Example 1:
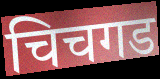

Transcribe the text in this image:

चिचगड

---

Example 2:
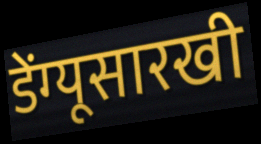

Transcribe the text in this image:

डेंग्यूसारखी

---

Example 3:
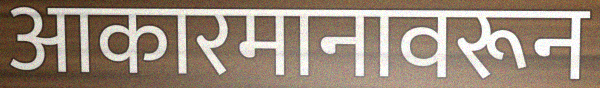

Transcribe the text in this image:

आकारमानावरून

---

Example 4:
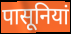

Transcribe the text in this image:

पासूनियां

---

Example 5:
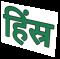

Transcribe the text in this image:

हिंस्र